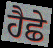
ਹੈਛੇ